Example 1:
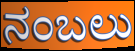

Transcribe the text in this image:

ನಂಬಲು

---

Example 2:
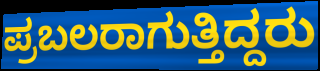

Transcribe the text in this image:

ಪ್ರಬಲರಾಗುತ್ತಿದ್ದರು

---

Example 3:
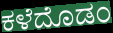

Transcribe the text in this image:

ಕಳೆದೊಡಂ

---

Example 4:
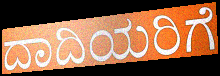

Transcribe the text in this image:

ದಾದಿಯರಿಗೆ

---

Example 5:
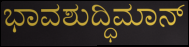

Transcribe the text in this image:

ಭಾವಶುದ್ಧಿಮಾನ್